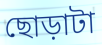
ছোড়াটা